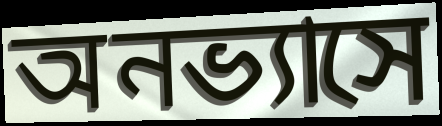
অনভ্যাসে